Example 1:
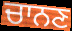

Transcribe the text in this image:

ਚਾਨਣ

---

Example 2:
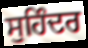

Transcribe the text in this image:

ਸੁਹਿੰਦਰ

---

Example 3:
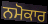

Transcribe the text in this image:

ਨਮੋਕਾਰ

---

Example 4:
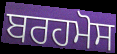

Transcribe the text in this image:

ਬਰਹਮੋਸ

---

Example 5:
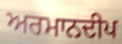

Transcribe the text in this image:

ਅਰਮਾਨਦੀਪ